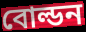
বোল্ডন